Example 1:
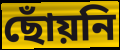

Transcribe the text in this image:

ছোঁয়নি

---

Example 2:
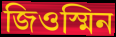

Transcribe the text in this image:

জিওস্মিন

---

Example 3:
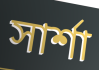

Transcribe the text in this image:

সার্শা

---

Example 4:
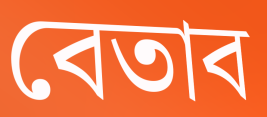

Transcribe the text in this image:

বেতাব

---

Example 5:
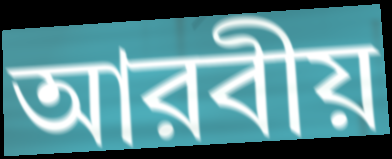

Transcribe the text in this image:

আরবীয়